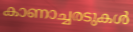
കാണാച്ചരടുകൾ